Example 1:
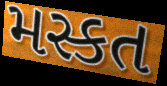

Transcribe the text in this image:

મસ્કત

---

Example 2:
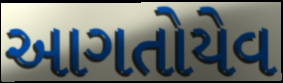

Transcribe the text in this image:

આગતોયેવ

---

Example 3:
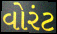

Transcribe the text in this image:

વોરંટ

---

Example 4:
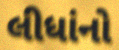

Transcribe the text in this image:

લીધાંનો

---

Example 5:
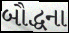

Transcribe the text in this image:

બૌદ્ધના